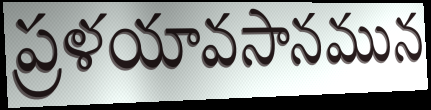
ప్రళయావసానమున